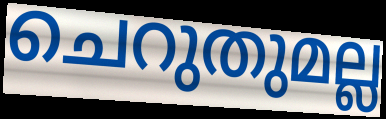
ചെറുതുമല്ല